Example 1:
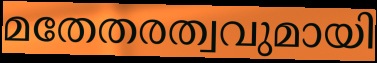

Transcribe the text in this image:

മതേതരത്വവുമായി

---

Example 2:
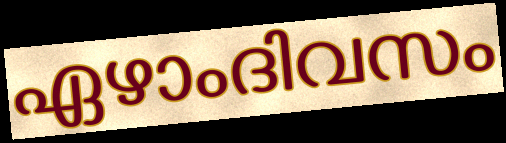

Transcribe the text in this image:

ഏഴാംദിവസം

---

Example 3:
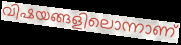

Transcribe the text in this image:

വിഷയങ്ങളിലൊന്നാണ്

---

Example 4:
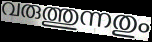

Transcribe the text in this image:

വരുത്തുന്നതും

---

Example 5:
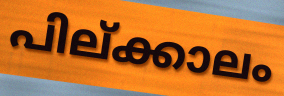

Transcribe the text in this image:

പില്ക്കാലം